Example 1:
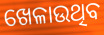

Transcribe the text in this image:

ଖେଳାଉଥିବ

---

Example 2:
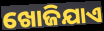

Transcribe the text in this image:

ଖୋଜିଯାଏ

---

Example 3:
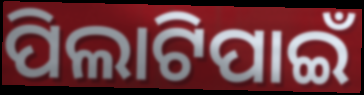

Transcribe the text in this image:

ପିଲାଟିପାଇଁ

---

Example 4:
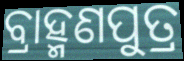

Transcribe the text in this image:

ବ୍ରାହ୍ମଣପୁତ୍ର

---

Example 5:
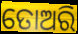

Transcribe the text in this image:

ତୋଅରି